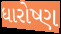
ધારોષ્ણ